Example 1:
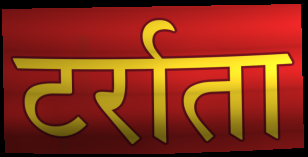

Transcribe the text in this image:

टर्राता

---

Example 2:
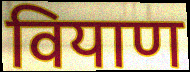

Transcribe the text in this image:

वियाण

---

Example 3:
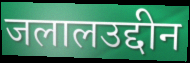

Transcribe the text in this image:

जलालउद्दीन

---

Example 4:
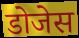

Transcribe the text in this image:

डोजेस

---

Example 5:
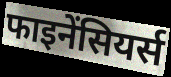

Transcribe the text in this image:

फाइनेंसियर्स